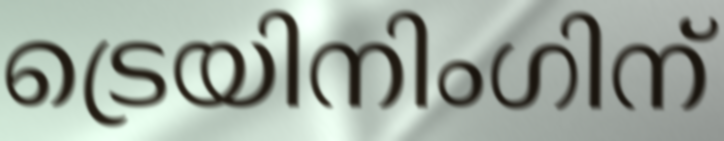
ട്രെയിനിംഗിന്